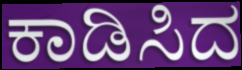
ಕಾಡಿಸಿದ